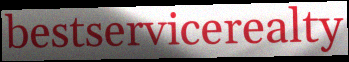
bestservicerealty